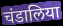
चंडालिया